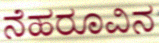
ನೆಹರೂವಿನ